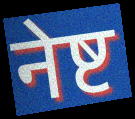
नेष्ट